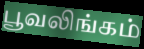
பூவலிங்கம்